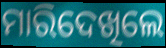
ମାରିଦେଖିଲେ